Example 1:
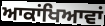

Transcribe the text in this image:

ਆਕਾਂਖਿਆਵਾਂ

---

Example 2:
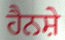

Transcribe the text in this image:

ਹੈਨਸ਼ੇ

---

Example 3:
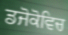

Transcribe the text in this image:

ਡਜੋਕੋਵਿਚ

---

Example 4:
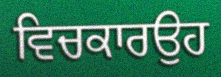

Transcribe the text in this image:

ਵਿਚਕਾਰਉਹ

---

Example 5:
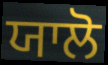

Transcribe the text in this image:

ਯਾਲੋ